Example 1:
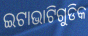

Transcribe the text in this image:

ଇଟାଭାଟିଗୁଡିକ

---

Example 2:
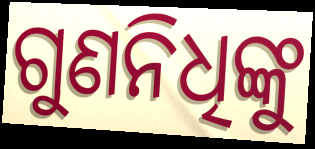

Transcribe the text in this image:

ଗୁଣନିଧିଙ୍କୁ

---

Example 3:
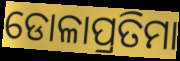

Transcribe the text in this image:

ଡୋଳାପ୍ରତିମା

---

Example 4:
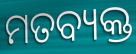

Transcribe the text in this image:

ମତବ୍ୟକ୍ତ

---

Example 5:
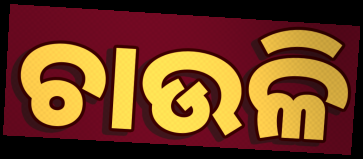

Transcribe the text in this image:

ଚାଉଳି